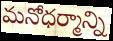
మనోధర్మాన్ని